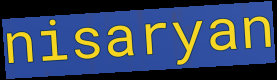
nisaryan